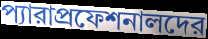
প্যারাপ্রফেশনালদের